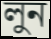
লুন